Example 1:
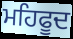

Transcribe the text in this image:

ਮਹਿਫੂਦ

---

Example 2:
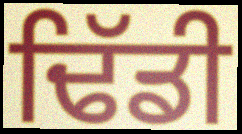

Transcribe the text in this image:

ਢਿੱਡੀ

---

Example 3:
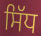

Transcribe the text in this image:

ਸਿੱਧ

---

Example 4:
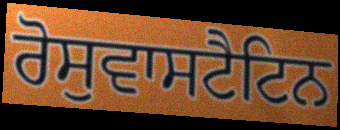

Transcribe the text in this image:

ਰੋਸੁਵਾਸਟੈਟਿਨ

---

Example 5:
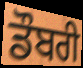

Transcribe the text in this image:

ਡੌਬਰੀ